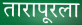
तारापूरला